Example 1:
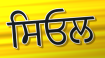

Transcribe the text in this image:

ਸਿਓਲ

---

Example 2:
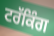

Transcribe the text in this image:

ਟਰੱਕਿੰਗ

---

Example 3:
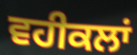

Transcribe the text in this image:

ਵਹੀਕਲਾਂ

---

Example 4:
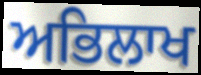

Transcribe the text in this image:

ਅਭਿਲਾਖ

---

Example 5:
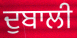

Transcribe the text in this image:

ਦੁਬਾਲੀ